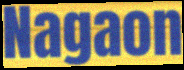
Nagaon